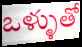
ఒళ్ళుతో